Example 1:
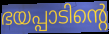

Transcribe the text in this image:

ഭയപ്പാടിന്റെ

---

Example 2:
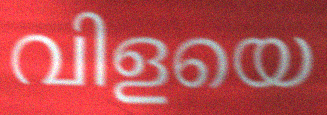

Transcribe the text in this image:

വിളയെ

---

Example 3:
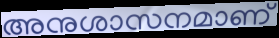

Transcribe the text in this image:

അനുശാസനമാണ്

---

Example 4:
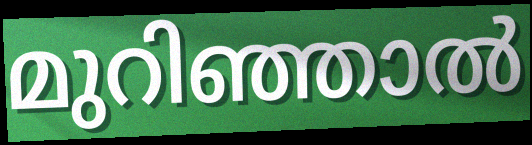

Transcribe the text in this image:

മുറിഞ്ഞാൽ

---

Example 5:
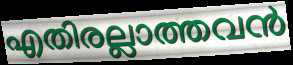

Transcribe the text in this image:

എതിരല്ലാത്തവൻ